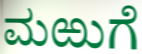
ಮಱುಗೆ